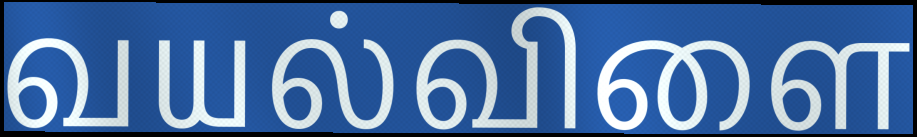
வயல்விளை